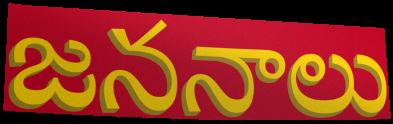
జననాలు